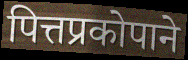
पित्तप्रकोपाने